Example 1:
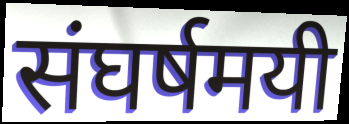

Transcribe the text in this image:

संघर्षमयी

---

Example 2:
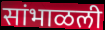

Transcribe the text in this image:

सांभाळली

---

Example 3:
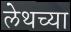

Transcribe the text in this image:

लेथच्या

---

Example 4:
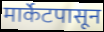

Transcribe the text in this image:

मार्केटपासून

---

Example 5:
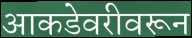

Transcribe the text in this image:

आकडेवरीवरून